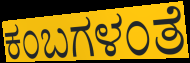
ಕಂಬಗಳಂತೆ